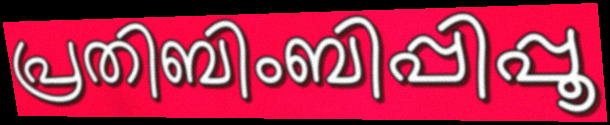
പ്രതിബിംബിപ്പിപ്പൂ